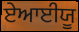
ਏਆਈਯੂ